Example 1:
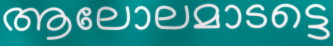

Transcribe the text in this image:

ആലോലമാടട്ടെ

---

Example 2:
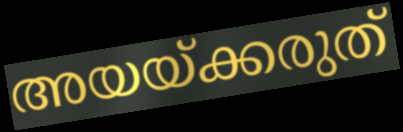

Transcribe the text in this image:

അയയ്ക്കരുത്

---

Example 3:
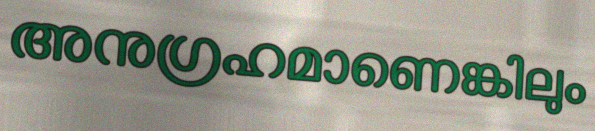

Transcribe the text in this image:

അനുഗ്രഹമാണെങ്കിലും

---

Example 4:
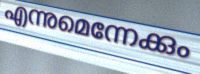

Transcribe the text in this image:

എന്നുമെന്നേക്കും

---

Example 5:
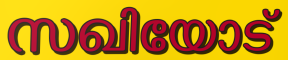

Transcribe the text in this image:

സഖിയോട്